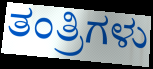
ತಂತ್ರಿಗಳು